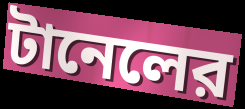
টানেলের